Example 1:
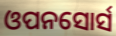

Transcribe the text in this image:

ଓପନସୋର୍ସ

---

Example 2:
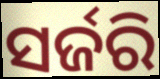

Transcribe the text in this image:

ସର୍ଜରି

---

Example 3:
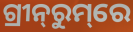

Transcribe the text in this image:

ଗ୍ରୀନ୍‌ରୁମ୍‌ରେ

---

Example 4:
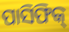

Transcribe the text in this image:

ପାସିଫିକ୍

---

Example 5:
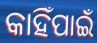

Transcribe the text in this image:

କାହିଁପାଇଁ